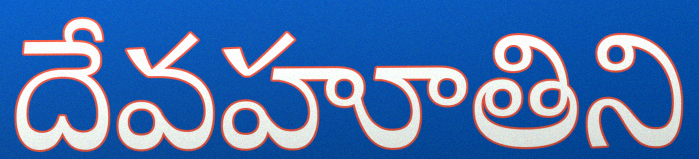
దేవహూతిని